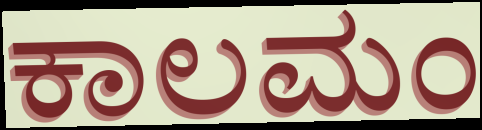
ಕಾಲಮಂ